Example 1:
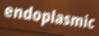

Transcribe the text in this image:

endoplasmic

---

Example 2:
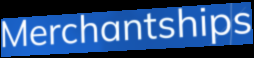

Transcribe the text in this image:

Merchantships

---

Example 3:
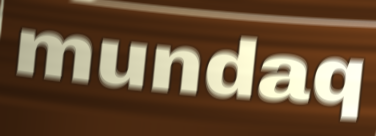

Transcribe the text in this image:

mundaq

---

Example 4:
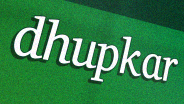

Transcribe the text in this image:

dhupkar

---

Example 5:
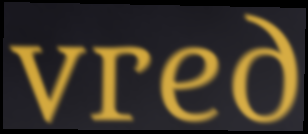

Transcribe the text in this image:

vred